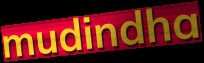
mudindha